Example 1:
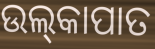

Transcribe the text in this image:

ଉଲ୍‍କାପାତ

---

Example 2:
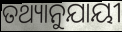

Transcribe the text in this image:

ତଥ୍ୟାନୁଯାୟୀ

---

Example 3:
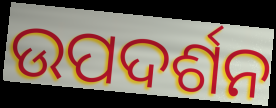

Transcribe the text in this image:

ଉପଦର୍ଶନ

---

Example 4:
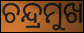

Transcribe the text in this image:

ଚନ୍ଦ୍ରମୁଖ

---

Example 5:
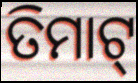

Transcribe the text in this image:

ତିମାଟ୍